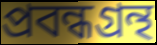
প্রবন্ধগ্রন্থ